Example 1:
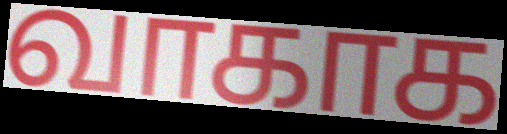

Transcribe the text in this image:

வாகாக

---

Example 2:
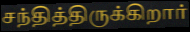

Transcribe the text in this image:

சந்தித்திருக்கிறார்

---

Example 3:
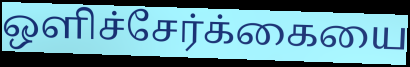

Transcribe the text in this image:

ஒளிச்சேர்க்கையை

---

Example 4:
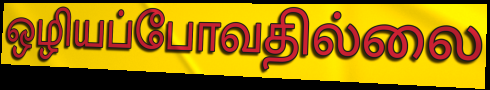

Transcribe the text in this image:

ஒழியப்போவதில்லை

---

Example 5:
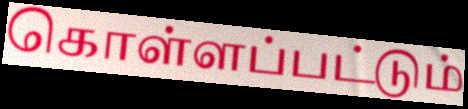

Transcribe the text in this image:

கொள்ளப்பட்டும்